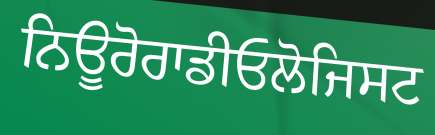
ਨਿਊਰੋਰਾਡੀਓਲੋਜਿਸਟ